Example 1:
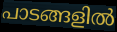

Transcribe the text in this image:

പാടങ്ങളിൽ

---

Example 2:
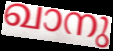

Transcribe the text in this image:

ഖാനു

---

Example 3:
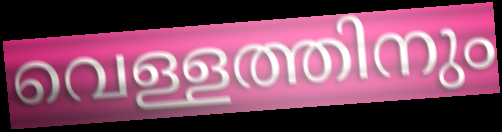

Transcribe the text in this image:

വെള്ളത്തിനും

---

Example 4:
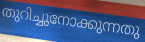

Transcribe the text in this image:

തുറിച്ചുനോക്കുന്നതു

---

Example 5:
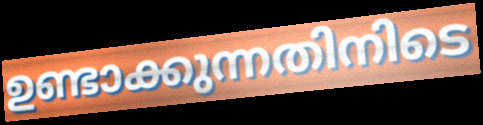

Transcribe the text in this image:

ഉണ്ടാക്കുന്നതിനിടെ